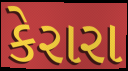
કેરારા